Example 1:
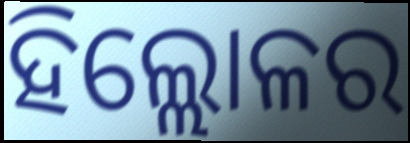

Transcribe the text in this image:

ହିଲ୍ଲୋଳର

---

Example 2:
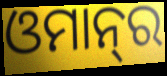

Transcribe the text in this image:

ଓମାନ୍‌ର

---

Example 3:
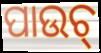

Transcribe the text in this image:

ପାଉଚ୍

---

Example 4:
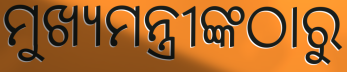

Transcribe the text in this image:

ମୁଖ୍ୟମନ୍ତ୍ରୀଙ୍କଠାରୁ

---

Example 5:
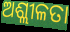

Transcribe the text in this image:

ଅଶ୍ଲୀଳତା